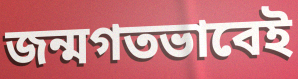
জন্মগতভাবেই